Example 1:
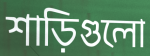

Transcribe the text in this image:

শাড়িগুলো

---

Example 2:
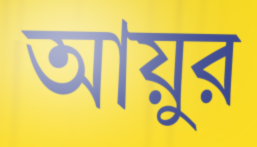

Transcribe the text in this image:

আয়ুর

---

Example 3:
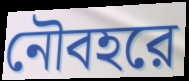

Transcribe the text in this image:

নৌবহরে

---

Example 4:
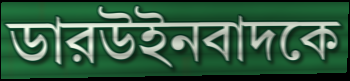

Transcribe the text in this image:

ডারউইনবাদকে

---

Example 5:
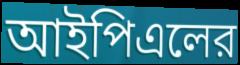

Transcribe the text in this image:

আইপিএলের